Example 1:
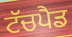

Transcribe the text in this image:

ਟੱਚਪੈਡ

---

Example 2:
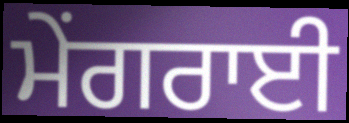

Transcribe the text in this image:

ਮੇਂਗਰਾਈ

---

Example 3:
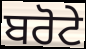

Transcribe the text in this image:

ਬਰੋਟੇ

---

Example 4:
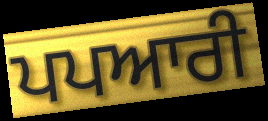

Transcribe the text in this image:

ਪਪਆਰੀ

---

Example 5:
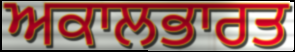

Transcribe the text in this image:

ਅਕਾਲਭਾਰਤ